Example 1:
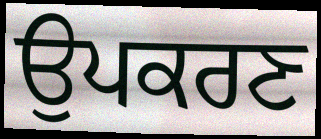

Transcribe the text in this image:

ਉਪਕਰਣ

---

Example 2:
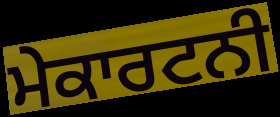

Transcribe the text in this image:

ਮੇਕਾਰਟਨੀ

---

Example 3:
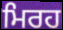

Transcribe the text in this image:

ਮਿਰਹ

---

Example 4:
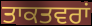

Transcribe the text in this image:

ਤਾਕਤਵਰਾਂ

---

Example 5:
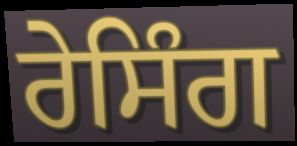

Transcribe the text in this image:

ਰੇਸਿੰਗ